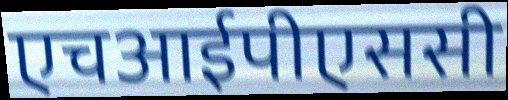
एचआईपीएससी